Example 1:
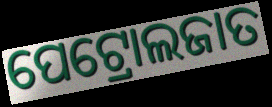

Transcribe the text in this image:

ପେଟ୍ରୋଲଜାତ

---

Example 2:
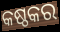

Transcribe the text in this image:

କଷ୍ଠକର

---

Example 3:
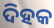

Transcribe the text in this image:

ଦିହକ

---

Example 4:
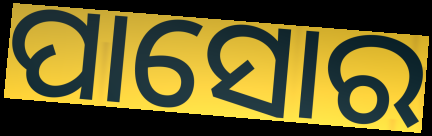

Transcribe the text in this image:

ପାସୋର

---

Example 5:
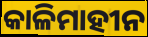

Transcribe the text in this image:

କାଳିମାହୀନ